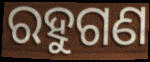
ରହୁଗଣ